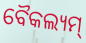
ବୈକଲ୍ୟମ୍